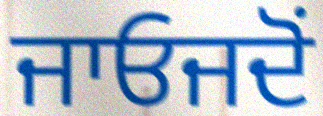
ਜਾਓਜਦੋਂ